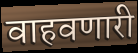
वाहवणारी